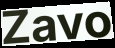
Zavo